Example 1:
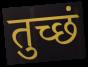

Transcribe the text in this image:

तुच्छं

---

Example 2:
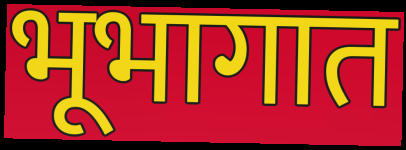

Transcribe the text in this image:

भूभागात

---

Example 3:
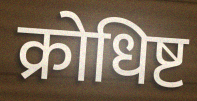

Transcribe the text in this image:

क्रोधिष्ट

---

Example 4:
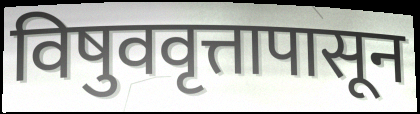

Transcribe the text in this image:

विषुववृत्तापासून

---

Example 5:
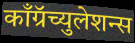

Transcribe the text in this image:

काँग्रॅच्युलेशन्स